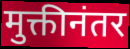
मुक्तीनंतर